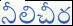
నీలిచీర